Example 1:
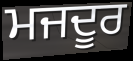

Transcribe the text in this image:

ਮਜਦੂਰ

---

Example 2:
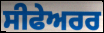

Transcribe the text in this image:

ਸੀਫੇਅਰਰ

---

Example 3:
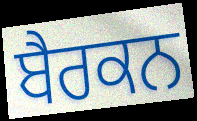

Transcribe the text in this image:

ਬੈਰਕਨ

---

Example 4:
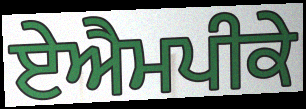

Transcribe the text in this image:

ਏਐਮਪੀਕੇ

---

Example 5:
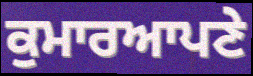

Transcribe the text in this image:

ਕੁਮਾਰਆਪਣੇ